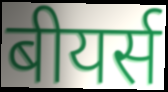
बीयर्स